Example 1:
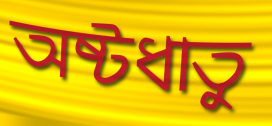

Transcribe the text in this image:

অষ্টধাতু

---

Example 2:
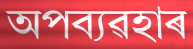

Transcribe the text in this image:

অপব্যৱহাৰ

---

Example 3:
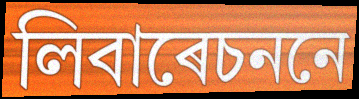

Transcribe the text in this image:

লিবাৰেচননে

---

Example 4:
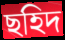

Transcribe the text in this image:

ছহিদ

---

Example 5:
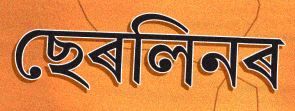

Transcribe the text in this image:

ছেৰলিনৰ